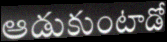
ఆడుకుంటాడో